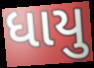
ધાયુ